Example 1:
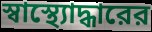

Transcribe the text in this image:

স্বাস্থ্যোদ্ধারের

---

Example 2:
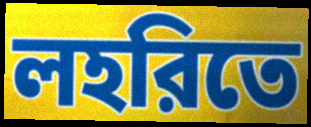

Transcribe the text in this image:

লহরিতে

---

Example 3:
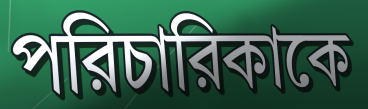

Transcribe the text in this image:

পরিচারিকাকে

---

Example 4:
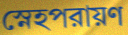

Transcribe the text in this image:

স্নেহপরায়ণ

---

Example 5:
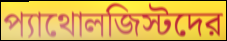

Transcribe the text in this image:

প্যাথোলজিস্টদের